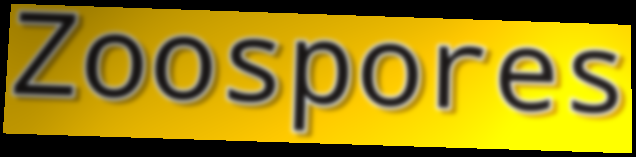
Zoospores